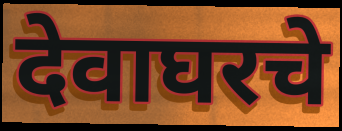
देवाघरचे